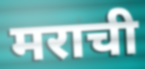
मराची